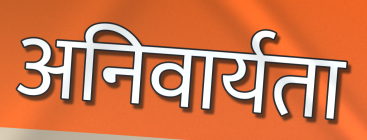
अनिवार्यता